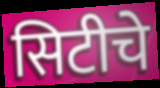
सिटीचे